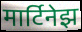
मार्टिनेझ